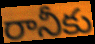
రానీకు